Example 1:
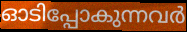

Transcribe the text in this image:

ഓടിപ്പോകുന്നവർ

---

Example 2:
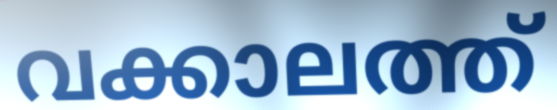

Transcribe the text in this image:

വക്കാലത്ത്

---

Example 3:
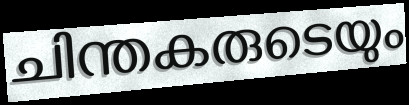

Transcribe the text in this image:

ചിന്തകരുടെയും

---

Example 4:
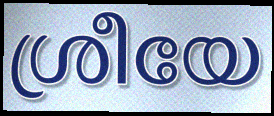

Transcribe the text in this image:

ശ്രീയേ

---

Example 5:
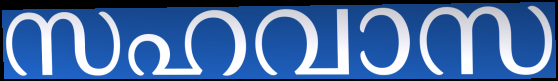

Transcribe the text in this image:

സഹവാസ